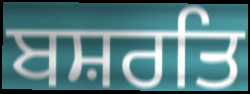
ਬਸ਼ਰਤਿ